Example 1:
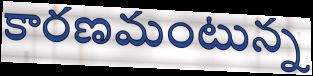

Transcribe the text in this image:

కారణమంటున్న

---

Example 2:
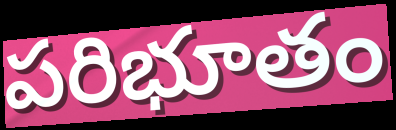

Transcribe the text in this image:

పరిభూతం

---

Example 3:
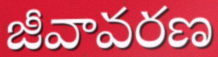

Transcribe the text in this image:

జీవావరణ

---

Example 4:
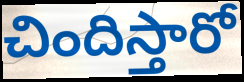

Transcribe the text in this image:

చిందిస్తారో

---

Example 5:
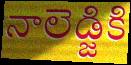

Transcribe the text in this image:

నాలెడ్జికి